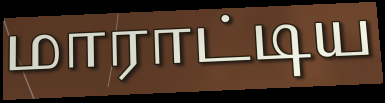
மாராட்டிய